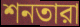
শনতারা